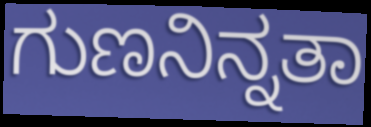
ಗುಣನಿನ್ನತಾ